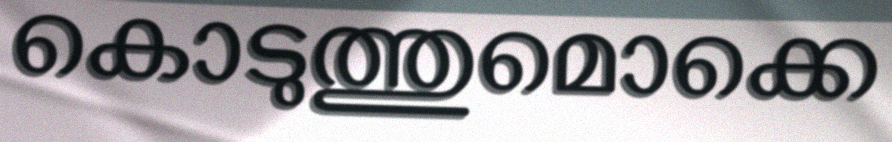
കൊടുത്തുമൊക്കെ